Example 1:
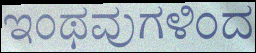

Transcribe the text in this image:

ಇಂಥವುಗಳಿಂದ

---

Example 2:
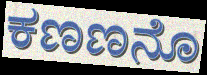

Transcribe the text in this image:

ಕಣಣನೊ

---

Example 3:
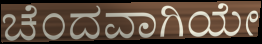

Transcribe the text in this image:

ಚೆಂದವಾಗಿಯೇ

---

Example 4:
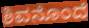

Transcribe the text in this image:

ಶಿವನೊಂದೆ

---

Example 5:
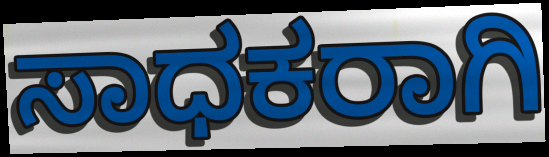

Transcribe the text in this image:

ಸಾಧಕರಾಗಿ